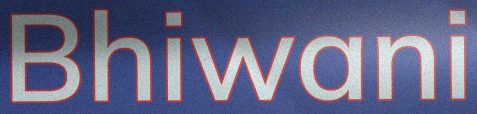
Bhiwani